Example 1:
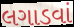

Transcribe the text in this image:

લગાડવાં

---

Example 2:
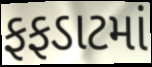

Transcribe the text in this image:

ફફડાટમાં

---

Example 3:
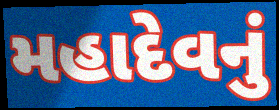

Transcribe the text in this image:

મહાદેવનું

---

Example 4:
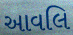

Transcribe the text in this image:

આવલિ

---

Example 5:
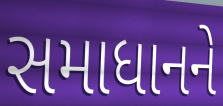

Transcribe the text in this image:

સમાધાનને